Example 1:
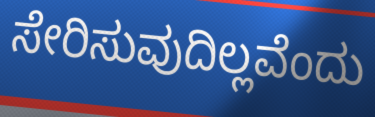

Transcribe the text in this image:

ಸೇರಿಸುವುದಿಲ್ಲವೆಂದು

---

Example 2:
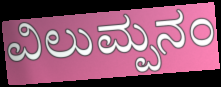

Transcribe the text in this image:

ವಿಲುಮ್ಪನಂ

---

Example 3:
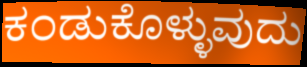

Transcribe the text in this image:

ಕಂಡುಕೊಳ್ಳುವುದು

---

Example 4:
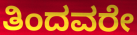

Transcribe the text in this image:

ತಿಂದವರೇ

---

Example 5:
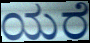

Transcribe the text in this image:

ಯರೆ